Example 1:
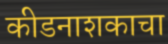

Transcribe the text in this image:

कीडनाशकाचा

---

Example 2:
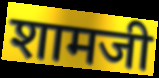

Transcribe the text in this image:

शामजी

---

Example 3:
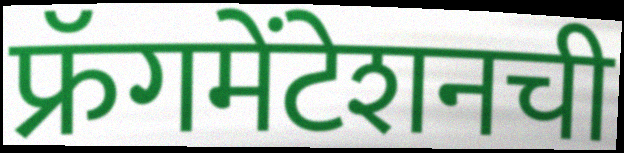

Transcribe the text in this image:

फ्रॅगमेंटेशनची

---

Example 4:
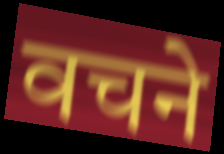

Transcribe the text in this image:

वचने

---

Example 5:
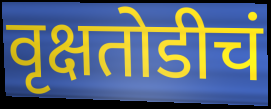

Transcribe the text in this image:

वृक्षतोडीचं